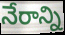
నేరాన్ని